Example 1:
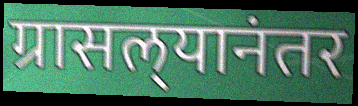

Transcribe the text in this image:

ग्रासल्यानंतर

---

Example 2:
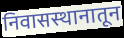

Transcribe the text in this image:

निवासस्थानातून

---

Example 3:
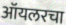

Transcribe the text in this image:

ऑयलरचा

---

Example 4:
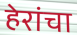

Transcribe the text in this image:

हेरांचा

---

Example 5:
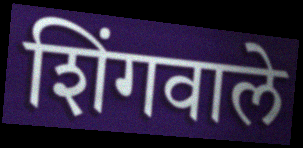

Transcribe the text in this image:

शिंगवाले